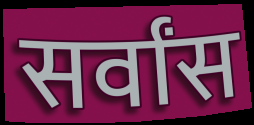
सर्वांस